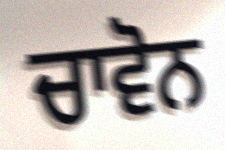
ਚਾਵੋਨ